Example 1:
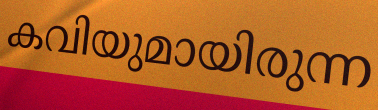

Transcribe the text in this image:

കവിയുമായിരുന്ന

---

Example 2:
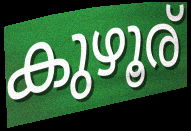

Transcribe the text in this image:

കുഴൂര്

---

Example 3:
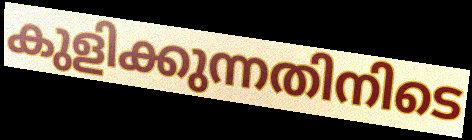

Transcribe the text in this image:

കുളിക്കുന്നതിനിടെ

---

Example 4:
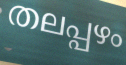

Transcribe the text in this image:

തലപ്പഴം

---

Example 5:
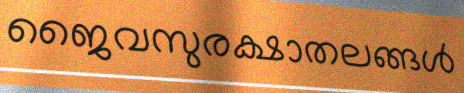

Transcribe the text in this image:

ജൈവസുരക്ഷാതലങ്ങൾ